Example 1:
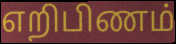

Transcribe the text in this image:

எறிபிணம்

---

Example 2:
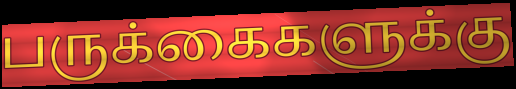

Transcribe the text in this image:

பருக்கைகளுக்கு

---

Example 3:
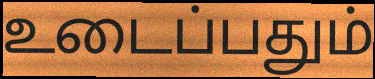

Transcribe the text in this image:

உடைப்பதும்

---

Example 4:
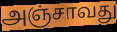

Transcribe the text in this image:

அஞ்சாவது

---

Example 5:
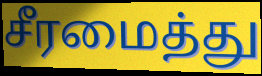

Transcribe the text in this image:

சீரமைத்து